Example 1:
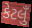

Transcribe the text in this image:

કેટલુઁ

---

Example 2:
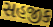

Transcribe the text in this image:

સહજીક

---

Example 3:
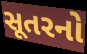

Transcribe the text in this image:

સૂતરનો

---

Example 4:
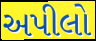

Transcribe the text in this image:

અપીલો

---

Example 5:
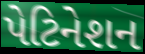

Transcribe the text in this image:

પેટિનેશન